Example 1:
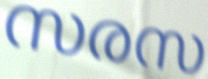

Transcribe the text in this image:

സരസ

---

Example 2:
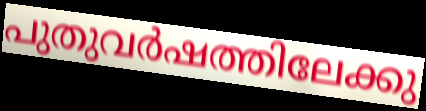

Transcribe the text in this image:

പുതുവർഷത്തിലേക്കു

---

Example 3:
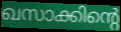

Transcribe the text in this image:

ഖസാക്കിന്റെ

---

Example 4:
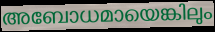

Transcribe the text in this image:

അബോധമായെങ്കിലും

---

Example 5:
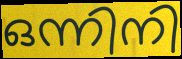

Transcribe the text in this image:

ഒന്നിനി